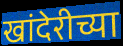
खांदेरीच्या